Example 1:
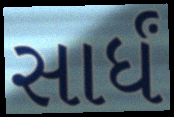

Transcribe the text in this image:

સાર્ધં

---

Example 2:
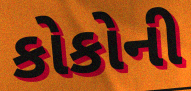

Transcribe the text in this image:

કોકોની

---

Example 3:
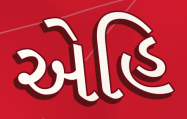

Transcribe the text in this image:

એહિ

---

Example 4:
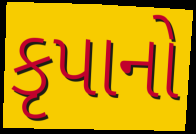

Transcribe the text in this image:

કૃપાનો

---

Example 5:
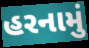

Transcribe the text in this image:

હરનામું